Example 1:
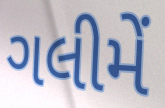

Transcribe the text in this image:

ગલીમેં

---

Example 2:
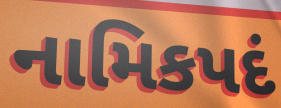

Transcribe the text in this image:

નામિકપદં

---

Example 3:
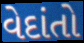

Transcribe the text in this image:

વેદાંતો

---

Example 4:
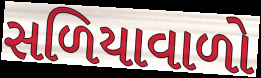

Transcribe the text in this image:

સળિયાવાળો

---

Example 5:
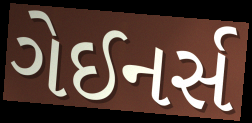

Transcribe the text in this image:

ગેઈનર્સ